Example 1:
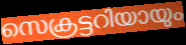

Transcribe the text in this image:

സെക്രട്ടറിയായും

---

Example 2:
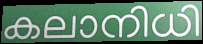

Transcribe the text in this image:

കലാനിധി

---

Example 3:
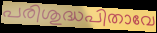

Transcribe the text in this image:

പരിശുദ്ധപിതാവേ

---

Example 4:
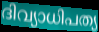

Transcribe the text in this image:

ദിവ്യാധിപത്യ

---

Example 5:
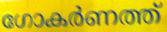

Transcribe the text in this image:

ഗോകർണത്ത്